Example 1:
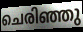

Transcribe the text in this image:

ചെരിഞ്ഞു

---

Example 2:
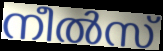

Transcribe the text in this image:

നീൽസ്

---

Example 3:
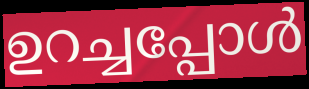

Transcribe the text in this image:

ഉറച്ചപ്പോൾ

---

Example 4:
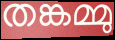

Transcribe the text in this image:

തങ്കമ്മു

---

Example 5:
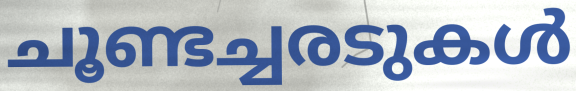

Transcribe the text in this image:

ചൂണ്ടച്ചരടുകൾ